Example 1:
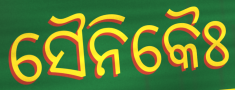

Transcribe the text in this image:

ସୈନିକୈଃ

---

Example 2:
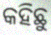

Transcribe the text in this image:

କହିଛୁ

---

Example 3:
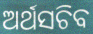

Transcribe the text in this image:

ଅର୍ଥସଚିବ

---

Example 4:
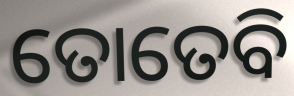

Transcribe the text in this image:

ତୋତେବି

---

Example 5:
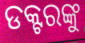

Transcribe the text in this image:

ଡକ୍ଟରଙ୍କୁ